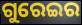
ଗୁରେଇର